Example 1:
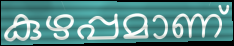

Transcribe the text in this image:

കുഴപ്പമാണ്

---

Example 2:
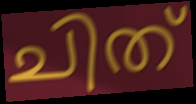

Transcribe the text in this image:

ചിത്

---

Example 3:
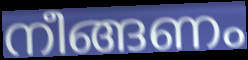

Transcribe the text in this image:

നീങ്ങണം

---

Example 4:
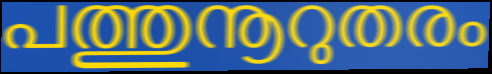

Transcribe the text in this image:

പത്തുനൂറുതരം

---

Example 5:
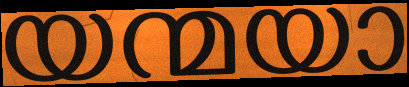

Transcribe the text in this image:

യന്മയാ